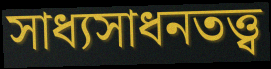
সাধ্যসাধনতত্ত্ব